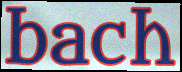
bach